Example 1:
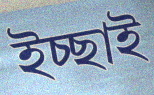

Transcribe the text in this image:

ইচ্ছাই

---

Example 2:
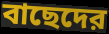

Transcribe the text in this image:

বাছেদের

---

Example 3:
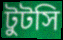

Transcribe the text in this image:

টুটসি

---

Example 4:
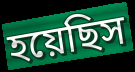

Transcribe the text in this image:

হয়েছিস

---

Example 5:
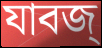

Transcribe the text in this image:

যাবজ্